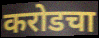
करोडचा